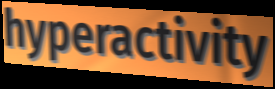
hyperactivity